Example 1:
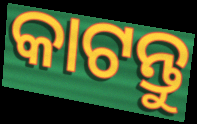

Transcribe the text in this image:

କାଟନ୍ତୁ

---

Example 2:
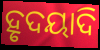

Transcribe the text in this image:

ହୃଦୟାଦି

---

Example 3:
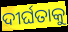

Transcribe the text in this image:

ଦୀର୍ଘତାକୁ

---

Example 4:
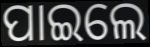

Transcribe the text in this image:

ପାଇଲେ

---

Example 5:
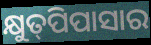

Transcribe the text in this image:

କ୍ଷୁତ୍‌ପିପାସାର